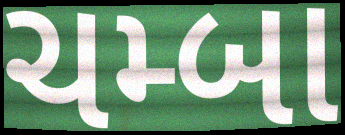
ચમ્બા